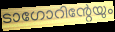
ടാഗോറിന്റേയും